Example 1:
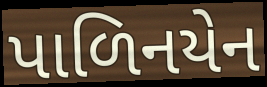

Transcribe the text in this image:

પાળિનયેન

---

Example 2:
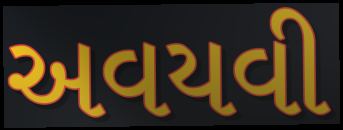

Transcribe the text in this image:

અવયવી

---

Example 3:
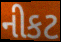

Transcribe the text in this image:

નીકટ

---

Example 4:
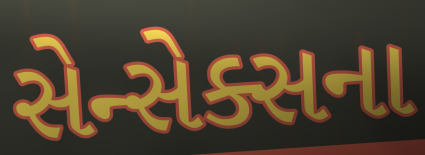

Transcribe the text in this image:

સેન્સેક્સના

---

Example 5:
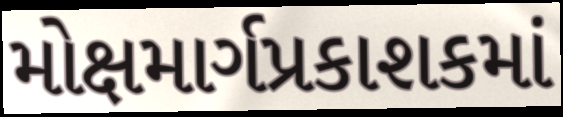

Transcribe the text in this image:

મોક્ષમાર્ગપ્રકાશકમાં